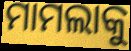
ମାମଲାକୁ